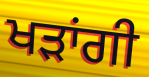
ਖੜਾਂਗੀ